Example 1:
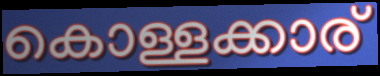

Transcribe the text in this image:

കൊള്ളക്കാര്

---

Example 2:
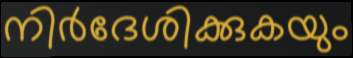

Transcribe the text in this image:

നിർദേശിക്കുകയും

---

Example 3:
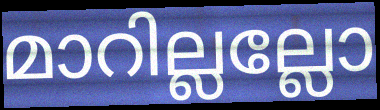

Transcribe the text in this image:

മാറില്ലല്ലോ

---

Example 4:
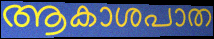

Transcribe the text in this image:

ആകാശപാത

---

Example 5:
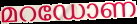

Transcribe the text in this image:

മറഡോണ